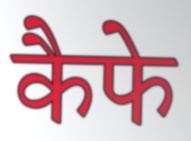
कैफे